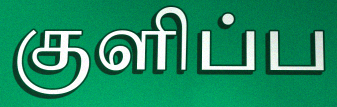
குளிப்ப